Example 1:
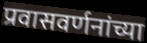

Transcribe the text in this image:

प्रवासवर्णनांच्या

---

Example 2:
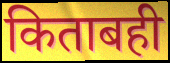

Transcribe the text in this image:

किताबही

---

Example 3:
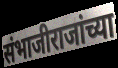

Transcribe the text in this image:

संभाजीराजांच्या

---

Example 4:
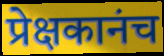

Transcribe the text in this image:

प्रेक्षकानंच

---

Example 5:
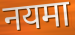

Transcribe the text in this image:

नयमा